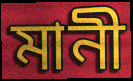
মানী